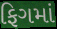
ફિગમાં